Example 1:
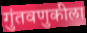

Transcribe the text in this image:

गुंतवणुकीला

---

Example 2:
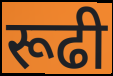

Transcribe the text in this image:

रूढी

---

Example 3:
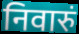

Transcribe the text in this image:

निवारुं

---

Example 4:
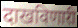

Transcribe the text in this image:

दाखविणारी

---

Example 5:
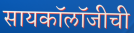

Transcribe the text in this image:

सायकॉलॉजीची